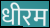
धीरम